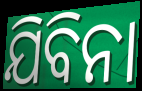
ଯିବିନା